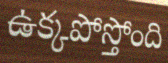
ఉక్కపోస్తోంది